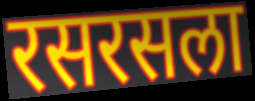
रसरसला